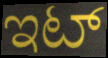
ಇಟ್